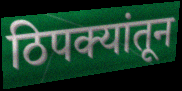
ठिपक्यांतून